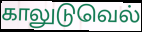
காலுடுவெல்